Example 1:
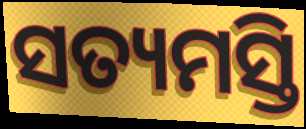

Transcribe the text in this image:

ସତ୍ୟମସ୍ତି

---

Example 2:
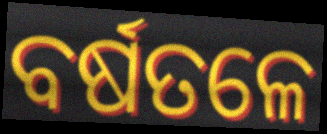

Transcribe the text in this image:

ବର୍ଷତଳେ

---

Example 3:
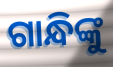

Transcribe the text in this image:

ଗାନ୍ଧିଙ୍କୁ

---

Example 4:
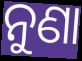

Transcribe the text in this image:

ନୁଣା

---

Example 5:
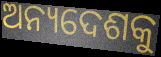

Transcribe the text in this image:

ଅନ୍ୟଦେଶକୁ